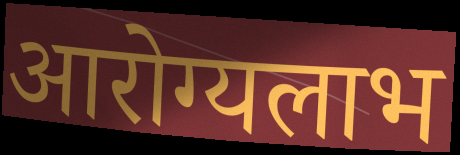
आरोग्यलाभ